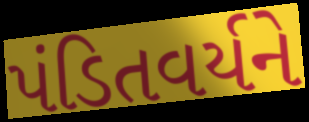
પંડિતવર્યને